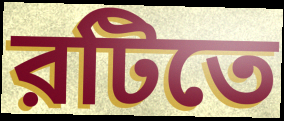
রটিতে